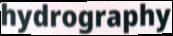
hydrography